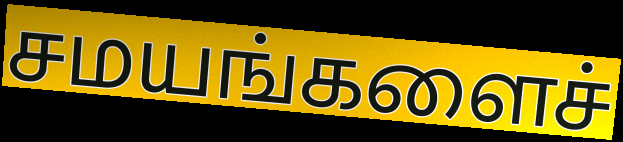
சமயங்களைச்